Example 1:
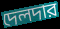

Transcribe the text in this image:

দেলদার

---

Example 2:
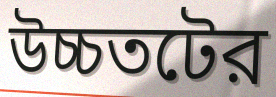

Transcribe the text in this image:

উচ্চতটের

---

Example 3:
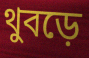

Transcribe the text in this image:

থুবড়ে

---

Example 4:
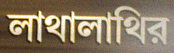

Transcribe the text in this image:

লাথালাথির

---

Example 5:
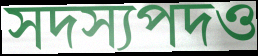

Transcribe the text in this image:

সদস্যপদও